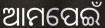
ଆମପେଇଁ